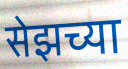
सेझच्या